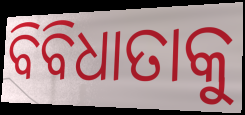
ବିବିଧାତାକୁ